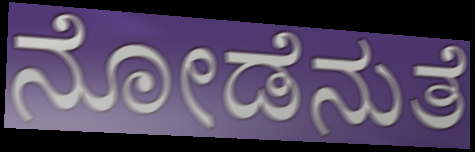
ನೋಡೆನುತೆ